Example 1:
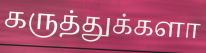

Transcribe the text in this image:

கருத்துக்களா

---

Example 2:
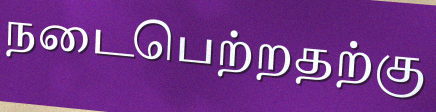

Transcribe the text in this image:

நடைபெற்றதற்கு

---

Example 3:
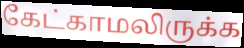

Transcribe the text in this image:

கேட்காமலிருக்க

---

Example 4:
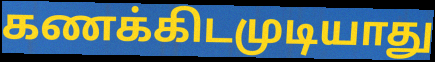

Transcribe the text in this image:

கணக்கிடமுடியாது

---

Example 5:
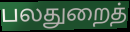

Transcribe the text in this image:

பலதுறைத்